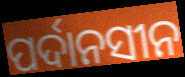
ପର୍ଦାନସୀନ